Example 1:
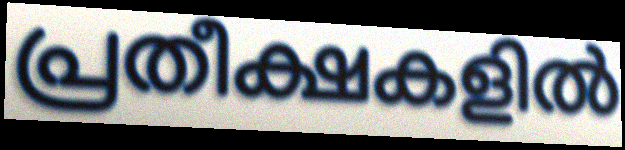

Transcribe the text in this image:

പ്രതീക്ഷകളിൽ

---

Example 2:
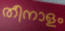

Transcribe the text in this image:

തീനാളം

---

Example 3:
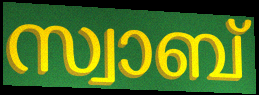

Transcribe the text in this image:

സ്വാബ്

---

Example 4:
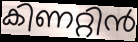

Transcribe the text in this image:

കിണറ്റിൻ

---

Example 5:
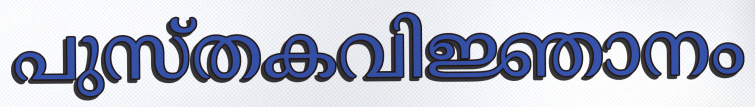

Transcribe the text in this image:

പുസ്തകവിജ്ഞാനം